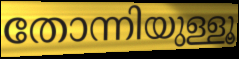
തോന്നിയുള്ളൂ